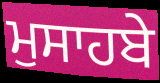
ਮੁਸਾਹਬੇ